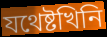
যথেষ্টখিনি